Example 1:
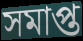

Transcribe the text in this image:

সমাপ্ত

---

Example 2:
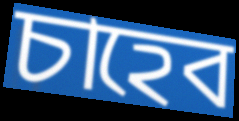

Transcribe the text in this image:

চাহেব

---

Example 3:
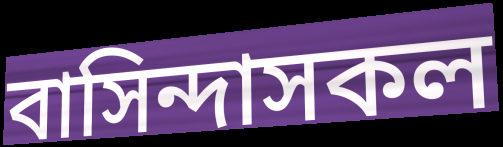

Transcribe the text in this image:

বাসিন্দাসকল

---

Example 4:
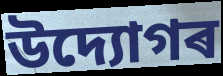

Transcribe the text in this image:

উদ্যোগৰ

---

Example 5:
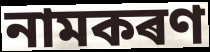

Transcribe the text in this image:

নামকৰণ